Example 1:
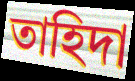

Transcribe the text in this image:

তাহিদা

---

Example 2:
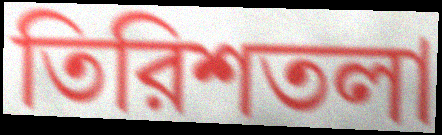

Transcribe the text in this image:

তিরিশতলা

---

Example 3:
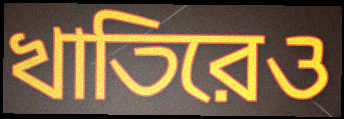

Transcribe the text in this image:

খাতিরেও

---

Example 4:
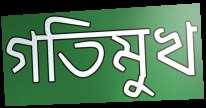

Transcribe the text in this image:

গতিমুখ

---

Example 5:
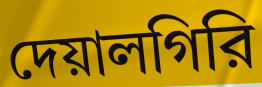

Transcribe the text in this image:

দেয়ালগিরি